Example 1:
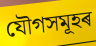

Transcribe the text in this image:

যৌগসমূহৰ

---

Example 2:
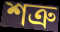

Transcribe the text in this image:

শত্ৰু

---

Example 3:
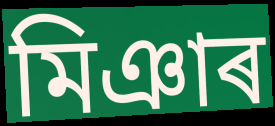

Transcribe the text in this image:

মিঞাৰ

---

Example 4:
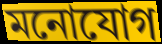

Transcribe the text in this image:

মনোযোগ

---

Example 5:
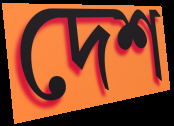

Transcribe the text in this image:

দেশ